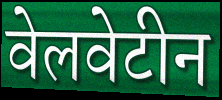
वेलवेटीन